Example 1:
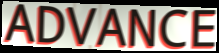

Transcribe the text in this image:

ADVANCE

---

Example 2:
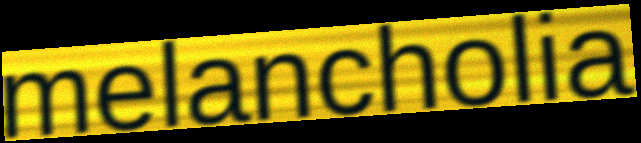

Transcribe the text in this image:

melancholia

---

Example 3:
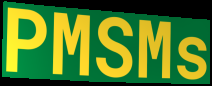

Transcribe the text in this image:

PMSMs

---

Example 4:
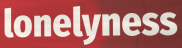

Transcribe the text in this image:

lonelyness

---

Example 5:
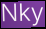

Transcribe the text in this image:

Nky